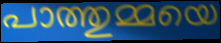
പാത്തുമ്മയെ